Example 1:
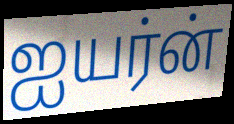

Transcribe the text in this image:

ஐயர்ன்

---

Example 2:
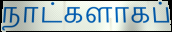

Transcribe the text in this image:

நாட்களாகப்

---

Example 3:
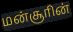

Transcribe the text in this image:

மன்சூரின்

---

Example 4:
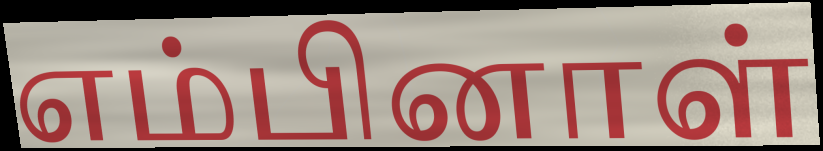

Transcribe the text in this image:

எம்பினாள்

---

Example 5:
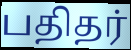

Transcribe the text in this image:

பதிதர்